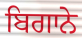
ਬਿਗਾਨੇ